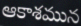
ఆకాశమున